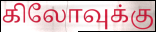
கிலோவுக்கு